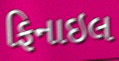
ફિનાઇલ